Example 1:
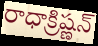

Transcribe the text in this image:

రాధాక్రిష్ణన్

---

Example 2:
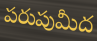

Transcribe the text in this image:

పరుపుమీద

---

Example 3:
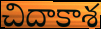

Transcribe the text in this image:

చిదాకాశ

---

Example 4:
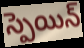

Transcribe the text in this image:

స్పెయిన్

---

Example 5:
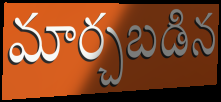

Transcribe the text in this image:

మార్చబడిన